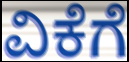
ವಿಕೆಗೆ